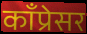
काँप्रेसर